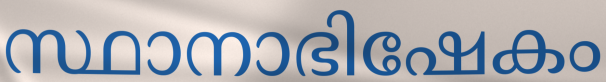
സ്ഥാനാഭിഷേകം